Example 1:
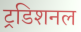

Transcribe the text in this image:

ट्रडिशनल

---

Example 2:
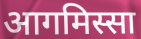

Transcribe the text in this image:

आगमिस्सा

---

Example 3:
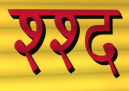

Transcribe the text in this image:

श्श्द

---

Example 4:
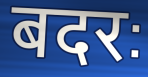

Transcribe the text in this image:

बदरः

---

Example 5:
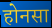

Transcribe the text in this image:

होनसा